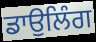
ਡਾਉਲਿੰਗ